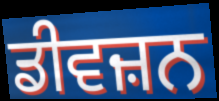
ਡੀਵਜ਼ਨ